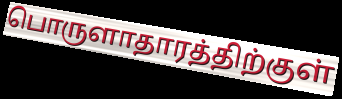
பொருளாதாரத்திற்குள்